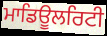
ਮਾਡਿਊਲਰਿਟੀ